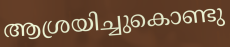
ആശ്രയിച്ചുകൊണ്ടു